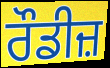
ਰੌਡੀਜ਼